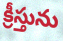
క్రీస్తును